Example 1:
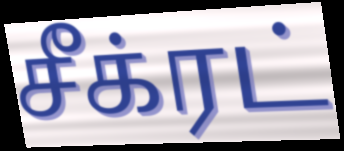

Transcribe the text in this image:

சீக்ரட்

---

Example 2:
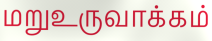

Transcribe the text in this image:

மறுஉருவாக்கம்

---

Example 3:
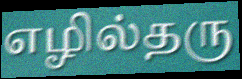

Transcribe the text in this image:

எழில்தரு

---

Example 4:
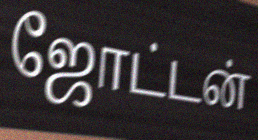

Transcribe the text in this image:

ஜோட்டன்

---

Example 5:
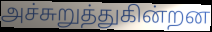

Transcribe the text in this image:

அச்சுறுத்துகின்றன